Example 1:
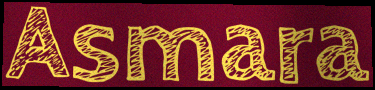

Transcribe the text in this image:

Asmara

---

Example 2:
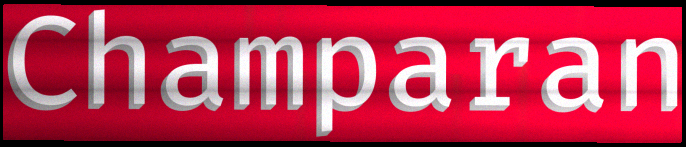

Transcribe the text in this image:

Champaran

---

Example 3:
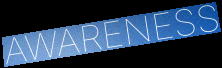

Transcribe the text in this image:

AWARENESS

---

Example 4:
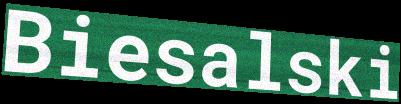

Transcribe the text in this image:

Biesalski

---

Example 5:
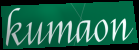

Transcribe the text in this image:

kumaon